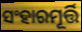
ସଂହାରମୂର୍ତ୍ତି